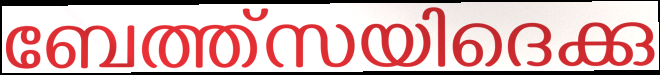
ബേത്ത്സയിദെക്കു